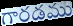
గారడము